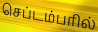
செப்டம்பரில்